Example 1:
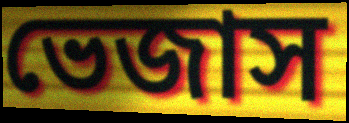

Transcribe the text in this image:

ভেজাস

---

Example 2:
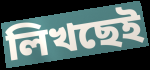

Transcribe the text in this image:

লিখছেই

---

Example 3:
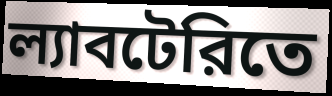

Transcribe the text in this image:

ল্যাবটেরিতে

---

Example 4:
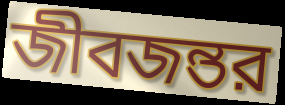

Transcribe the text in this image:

জীবজন্তর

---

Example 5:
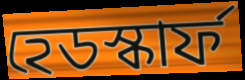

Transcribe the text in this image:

হেডস্কার্ফ